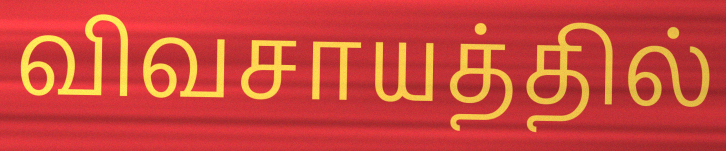
விவசாயத்தில்